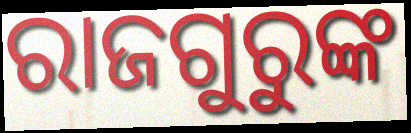
ରାଜଗୁରୁଙ୍କ